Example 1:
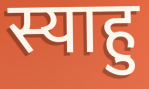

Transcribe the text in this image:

स्याहु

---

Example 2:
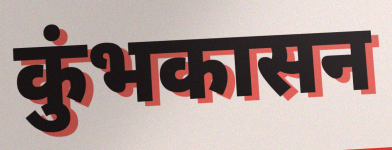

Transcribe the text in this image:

कुंभकासन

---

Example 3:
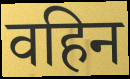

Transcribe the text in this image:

वहिन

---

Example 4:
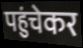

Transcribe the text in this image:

पहुंचेकर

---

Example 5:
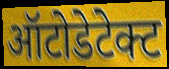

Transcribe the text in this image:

ऑटोडेटेक्ट